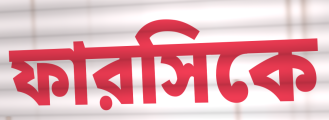
ফারসিকে